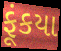
ફૂંકયા